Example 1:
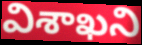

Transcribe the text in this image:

విశాఖని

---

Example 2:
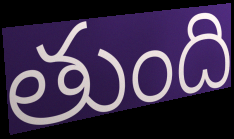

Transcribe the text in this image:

తుంది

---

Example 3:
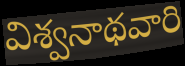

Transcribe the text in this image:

విశ్వనాథవారి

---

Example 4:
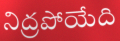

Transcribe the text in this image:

నిద్రపోయేది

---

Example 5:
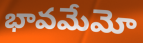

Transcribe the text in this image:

భావమేమో